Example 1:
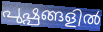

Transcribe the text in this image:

പുഷ്പങ്ങളിൽ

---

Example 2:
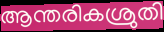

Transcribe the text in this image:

ആന്തരികശ്രുതി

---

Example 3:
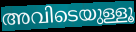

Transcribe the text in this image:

അവിടെയുള്ളൂ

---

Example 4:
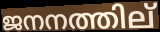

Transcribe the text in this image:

ജനനത്തില്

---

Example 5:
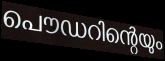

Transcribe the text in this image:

പൌഡറിന്റെയും